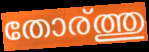
തോര്ത്തു